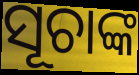
ସୂଚାଙ୍କ